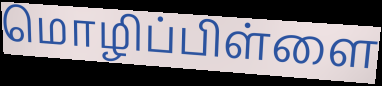
மொழிப்பிள்ளை